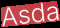
Asda